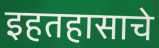
इहतहासाचे